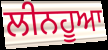
ਲੀਨਹੂਆ